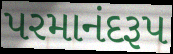
પરમાનંદરૂપ